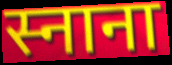
स्नाना